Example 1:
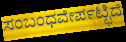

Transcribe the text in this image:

ಸಂಬಂಧವೇರ್ಪಟ್ಟಿದೆ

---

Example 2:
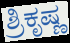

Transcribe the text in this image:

ಶ್ರಿಕೃಷ್ಣ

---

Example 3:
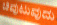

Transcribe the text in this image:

ಚಿವುಟುವುದು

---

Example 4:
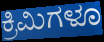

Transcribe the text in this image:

ಕ್ರಿಮಿಗಳೂ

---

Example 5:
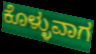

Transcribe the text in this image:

ಕೊಳ್ಳುವಾಗ